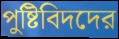
পুষ্টিবিদদের